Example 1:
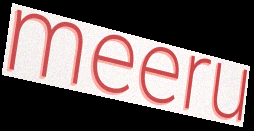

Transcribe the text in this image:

meeru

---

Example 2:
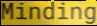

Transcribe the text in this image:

Minding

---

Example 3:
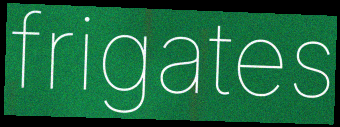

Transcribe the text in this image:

frigates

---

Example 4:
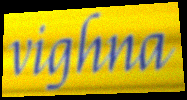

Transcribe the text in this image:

vighna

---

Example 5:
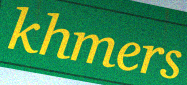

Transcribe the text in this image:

khmers